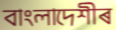
বাংলাদেশীৰ